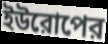
ইউরোপের